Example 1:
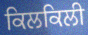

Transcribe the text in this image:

ਕਿਲਕਿਲੀ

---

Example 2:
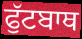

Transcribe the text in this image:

ਫੁੱਟਬਾਥ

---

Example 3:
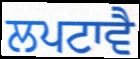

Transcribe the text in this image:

ਲਪਟਾਵੈ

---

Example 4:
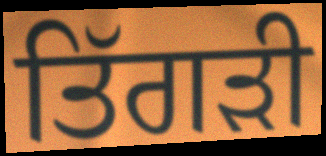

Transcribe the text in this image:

ਤਿੱਗੜੀ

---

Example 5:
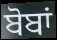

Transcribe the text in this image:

ਬੋਬਾਂ